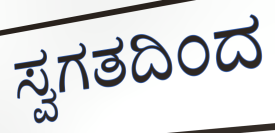
ಸ್ವಗತದಿಂದ